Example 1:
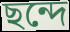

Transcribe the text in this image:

ছন্দে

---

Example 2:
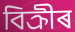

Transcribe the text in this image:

বিক্ৰীৰ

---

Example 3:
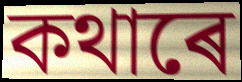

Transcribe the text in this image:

কথাৰে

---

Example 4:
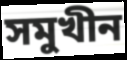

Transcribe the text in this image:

সমুখীন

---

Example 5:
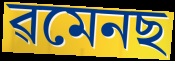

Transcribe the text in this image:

ৱমেনছ